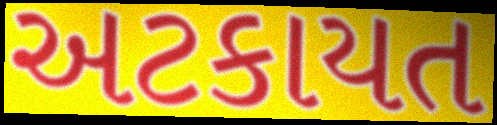
અટકાયત